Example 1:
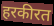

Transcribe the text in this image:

हरकीरत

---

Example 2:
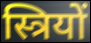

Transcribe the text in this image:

स्त्रियों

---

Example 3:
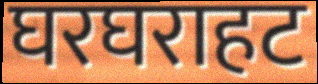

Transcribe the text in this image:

घरघराहट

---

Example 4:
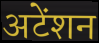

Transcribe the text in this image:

अटेंशन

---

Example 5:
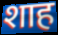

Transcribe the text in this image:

शाह